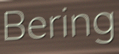
Bering